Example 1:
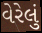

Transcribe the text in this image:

વેરેલું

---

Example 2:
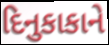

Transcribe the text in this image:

દિનુકાકાને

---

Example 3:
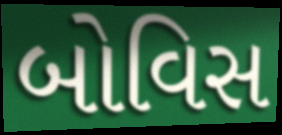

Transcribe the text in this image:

બોવિસ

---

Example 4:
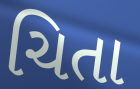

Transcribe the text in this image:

ચિતા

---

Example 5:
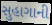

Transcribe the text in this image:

સુહાગાની